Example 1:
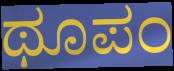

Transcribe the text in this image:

ಥೂಪಂ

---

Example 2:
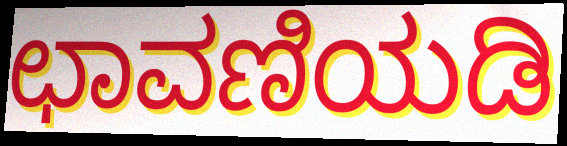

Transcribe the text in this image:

ಛಾವಣಿಯಡಿ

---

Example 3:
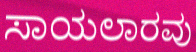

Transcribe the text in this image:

ಸಾಯಲಾರವು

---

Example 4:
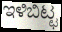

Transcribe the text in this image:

ಇಳಿಬಿಟ್ಟ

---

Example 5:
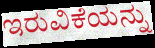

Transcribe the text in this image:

ಇರುವಿಕೆಯನ್ನು